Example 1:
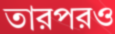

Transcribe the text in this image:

তারপরও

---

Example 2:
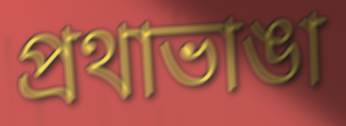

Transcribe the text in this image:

প্রথাভাঙা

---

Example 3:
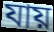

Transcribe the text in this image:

যায়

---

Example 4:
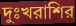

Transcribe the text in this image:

দুঃখরাশির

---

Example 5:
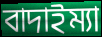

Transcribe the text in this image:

বাদাইম্যা